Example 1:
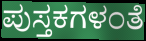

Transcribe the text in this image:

ಪುಸ್ತಕಗಳಂತೆ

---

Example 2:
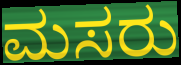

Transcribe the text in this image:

ಮಸರು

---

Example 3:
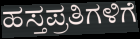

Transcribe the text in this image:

ಹಸ್ತಪ್ರತಿಗಳಿಗೆ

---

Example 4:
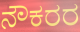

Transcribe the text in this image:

ನೌಕರರ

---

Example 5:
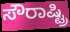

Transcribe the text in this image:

ಸೌರಾಷ್ಟ್ರಿ